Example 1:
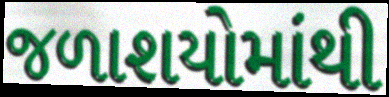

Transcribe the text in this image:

જળાશયોમાંથી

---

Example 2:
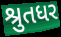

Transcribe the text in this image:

શ્રુતધર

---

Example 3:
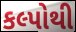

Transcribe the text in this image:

કલ્પોથી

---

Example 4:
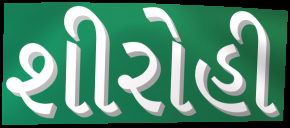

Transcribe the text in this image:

શીરોહી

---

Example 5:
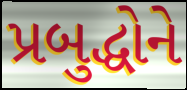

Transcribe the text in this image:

પ્રબુદ્ધોને